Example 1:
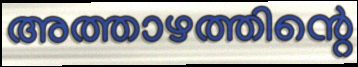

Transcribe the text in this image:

അത്താഴത്തിന്റെ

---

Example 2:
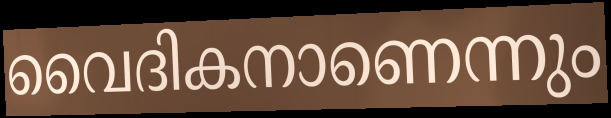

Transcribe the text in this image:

വൈദികനാണെന്നും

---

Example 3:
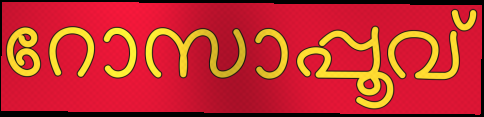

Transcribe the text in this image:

റോസാപ്പൂവ്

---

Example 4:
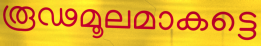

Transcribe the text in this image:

രൂഢമൂലമാകട്ടെ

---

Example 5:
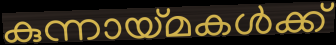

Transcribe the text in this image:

കുന്നായ്മകൾക്ക്